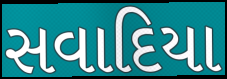
સવાદિયા